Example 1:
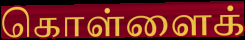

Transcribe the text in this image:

கொள்ளைக்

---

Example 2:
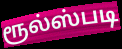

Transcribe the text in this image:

ரூல்ஸ்படி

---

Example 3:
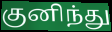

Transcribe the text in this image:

குனிந்து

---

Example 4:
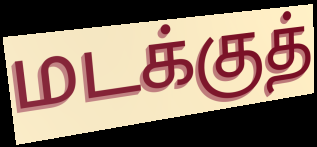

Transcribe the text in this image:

மடக்குத்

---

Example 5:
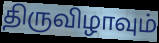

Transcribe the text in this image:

திருவிழாவும்